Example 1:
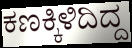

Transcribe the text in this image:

ಕಣಕ್ಕಿಳಿದಿದ್ದ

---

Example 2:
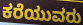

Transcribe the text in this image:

ಕರೆಯುವರು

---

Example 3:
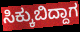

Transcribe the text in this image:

ಸಿಕ್ಕುಬಿದ್ದಾಗ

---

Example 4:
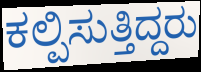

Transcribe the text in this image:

ಕಲ್ಪಿಸುತ್ತಿದ್ದರು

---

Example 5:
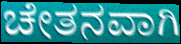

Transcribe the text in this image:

ಚೇತನವಾಗಿ